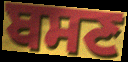
ਬਸਣ